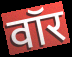
वॉर